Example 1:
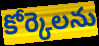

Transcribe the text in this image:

కోర్కెలను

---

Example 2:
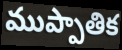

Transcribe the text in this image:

ముప్పాతిక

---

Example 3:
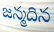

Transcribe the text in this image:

జన్మదిన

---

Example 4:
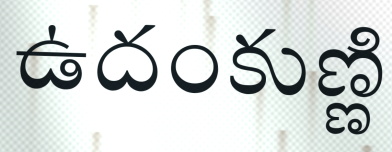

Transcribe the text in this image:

ఉదంకుణ్ణి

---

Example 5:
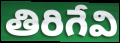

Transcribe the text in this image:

తిరిగేవి